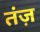
तंज़